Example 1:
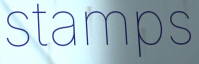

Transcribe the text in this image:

stamps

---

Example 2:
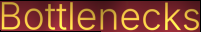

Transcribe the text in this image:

Bottlenecks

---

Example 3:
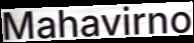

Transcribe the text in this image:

Mahavirno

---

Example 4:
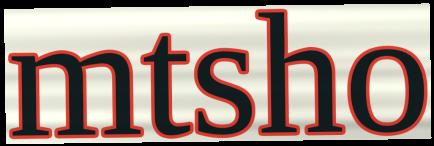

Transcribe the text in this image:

mtsho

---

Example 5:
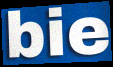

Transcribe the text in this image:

bie